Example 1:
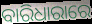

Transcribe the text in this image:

ବାରିଧାରାରେ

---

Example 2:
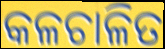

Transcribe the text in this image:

କଳଚାଳିତ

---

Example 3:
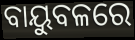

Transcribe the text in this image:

ବାୟୁବଳରେ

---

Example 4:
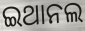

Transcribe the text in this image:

ଇଥାନଲ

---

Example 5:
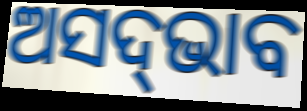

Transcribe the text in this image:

ଅସଦ୍‌ଭାବ